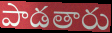
పాడతారు